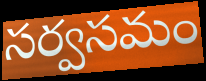
సర్వసమం